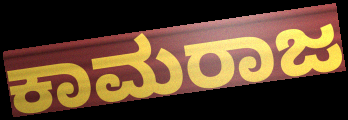
ಕಾಮರಾಜ